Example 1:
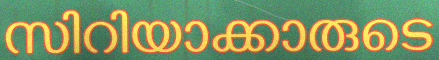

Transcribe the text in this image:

സിറിയാക്കാരുടെ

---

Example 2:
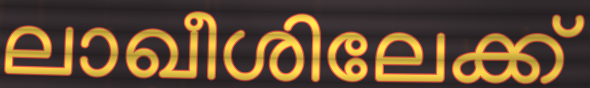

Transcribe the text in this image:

ലാഖീശിലേക്ക്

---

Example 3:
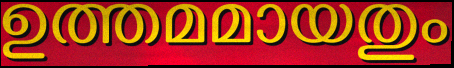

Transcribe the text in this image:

ഉത്തമമായതും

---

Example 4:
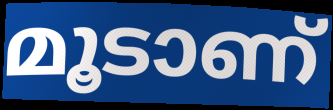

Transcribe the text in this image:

മൂടാണ്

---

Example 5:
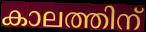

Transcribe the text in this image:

കാലത്തിന്